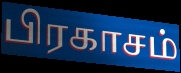
பிரகாசம்